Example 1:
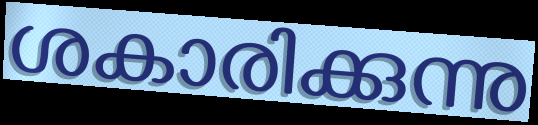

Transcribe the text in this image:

ശകാരിക്കുന്നു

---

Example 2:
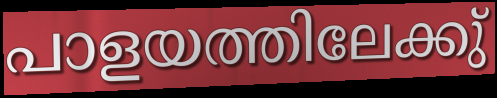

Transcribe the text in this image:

പാളയത്തിലേക്കു്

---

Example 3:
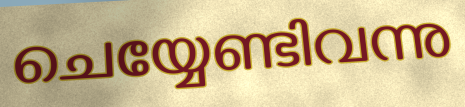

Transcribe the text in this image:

ചെയ്യേണ്ടിവന്നു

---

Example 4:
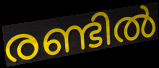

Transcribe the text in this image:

രണ്ടിൽ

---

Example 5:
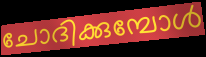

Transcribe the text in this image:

ചോദിക്കുമ്പോൾ